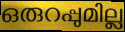
ഒരുറപ്പുമില്ല